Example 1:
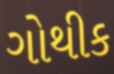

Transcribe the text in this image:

ગોથીક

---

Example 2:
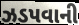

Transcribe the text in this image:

ઝડપવાની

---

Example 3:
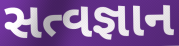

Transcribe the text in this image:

સત્વજ્ઞાન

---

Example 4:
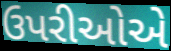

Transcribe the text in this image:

ઉપરીઓએ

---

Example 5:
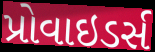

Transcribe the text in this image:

પ્રોવાઇડર્સ